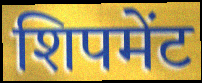
शिपमेंट